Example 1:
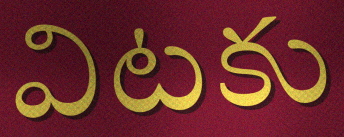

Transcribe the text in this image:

విటకు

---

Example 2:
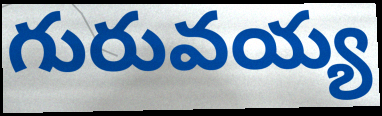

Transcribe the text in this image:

గురువయ్య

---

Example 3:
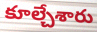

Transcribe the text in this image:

కూల్చేశారు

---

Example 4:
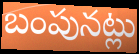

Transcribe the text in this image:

బంపునట్లు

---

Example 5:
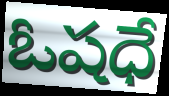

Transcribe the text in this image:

ఓషధే